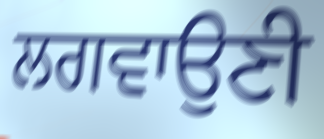
ਲਗਵਾਉਣੀ